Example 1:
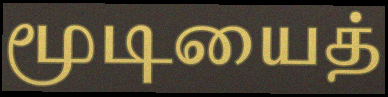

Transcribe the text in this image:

மூடியைத்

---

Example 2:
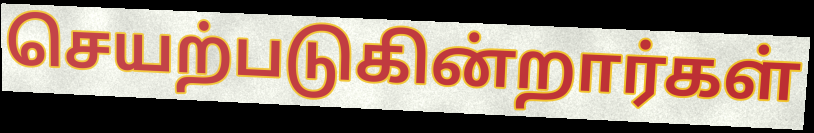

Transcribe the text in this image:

செயற்படுகின்றார்கள்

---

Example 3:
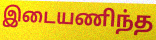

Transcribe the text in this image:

இடையணிந்த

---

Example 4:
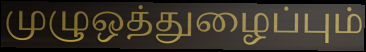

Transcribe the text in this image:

முழுஒத்துழைப்பும்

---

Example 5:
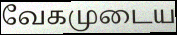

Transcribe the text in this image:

வேகமுடைய